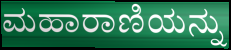
ಮಹಾರಾಣಿಯನ್ನು